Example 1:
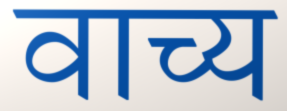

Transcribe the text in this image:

वाच्य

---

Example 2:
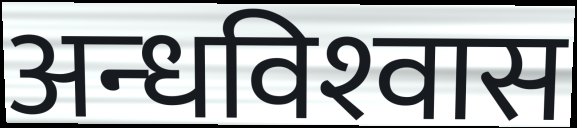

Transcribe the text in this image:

अन्‍धविश्‍वास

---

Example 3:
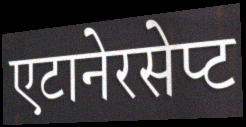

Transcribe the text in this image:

एटानेरसेप्ट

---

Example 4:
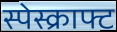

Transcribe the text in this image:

स्पेस्क्राफ्ट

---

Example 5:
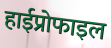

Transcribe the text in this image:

हाईप्रोफाइल